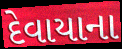
દેવાયાના